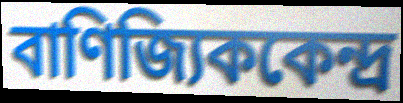
বাণিজ্যিককেন্দ্র